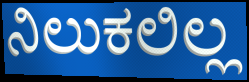
ನಿಲುಕಲಿಲ್ಲ